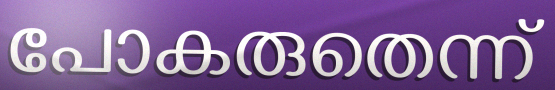
പോകരുതെന്ന്